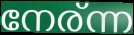
നേര്ന്ന